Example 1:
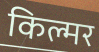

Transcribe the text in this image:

किल्मर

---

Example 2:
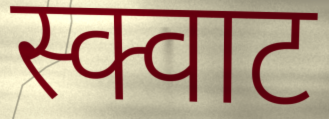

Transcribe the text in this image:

स्क्वाट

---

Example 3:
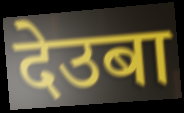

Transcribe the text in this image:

देउबा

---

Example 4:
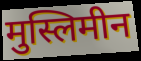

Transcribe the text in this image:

मुस्लिमीन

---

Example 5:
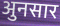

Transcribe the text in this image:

अुनसार